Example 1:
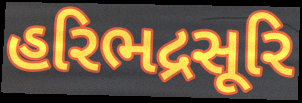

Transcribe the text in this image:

હરિભદ્રસૂરિ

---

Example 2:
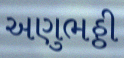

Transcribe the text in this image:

અણુભઠ્ઠી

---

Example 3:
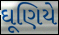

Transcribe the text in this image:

ઘૂણિયે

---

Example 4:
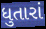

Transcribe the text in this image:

ધુતારાં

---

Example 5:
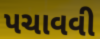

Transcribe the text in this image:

પચાવવી